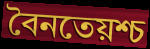
বৈনতেয়শ্চ